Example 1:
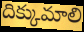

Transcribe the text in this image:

దిక్కుమాలి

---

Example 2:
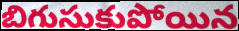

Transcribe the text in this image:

బిగుసుకుపోయిన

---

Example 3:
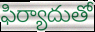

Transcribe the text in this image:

ఫిర్యాదుతో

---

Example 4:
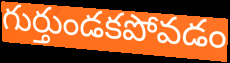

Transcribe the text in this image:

గుర్తుండకపోవడం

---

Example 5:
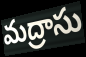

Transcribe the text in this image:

మద్రాసు